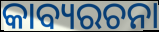
କାବ୍ୟରଚନା